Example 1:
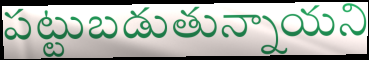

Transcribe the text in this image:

పట్టుబడుతున్నాయని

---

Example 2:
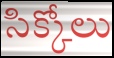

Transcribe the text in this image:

సిక్కోలు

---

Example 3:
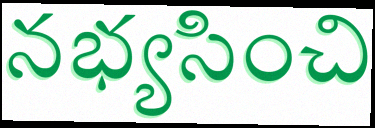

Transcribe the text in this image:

నభ్యసించి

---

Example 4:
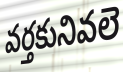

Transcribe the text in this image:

వర్తకునివలె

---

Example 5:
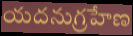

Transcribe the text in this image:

యదనుగ్రహేణ